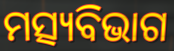
ମତ୍ସ୍ୟବିଭାଗ